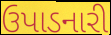
ઉપાડનારી